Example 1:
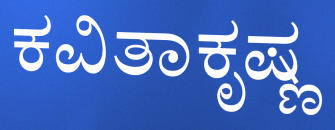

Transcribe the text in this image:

ಕವಿತಾಕೃಷ್ಣ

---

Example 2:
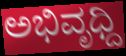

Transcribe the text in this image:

ಅಭಿವೃಧ್ದಿ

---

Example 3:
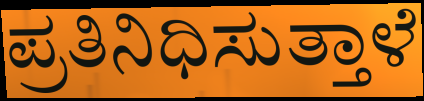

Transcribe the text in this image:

ಪ್ರತಿನಿಧಿಸುತ್ತಾಳೆ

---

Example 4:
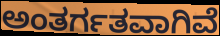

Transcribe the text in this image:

ಅಂತರ್ಗತವಾಗಿವೆ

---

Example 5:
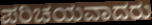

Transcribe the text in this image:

ಪರಿಚಯವಾದರು